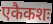
एकैकशः